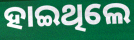
ହାଇଥିଲେ